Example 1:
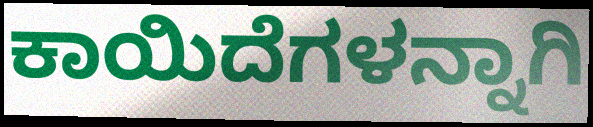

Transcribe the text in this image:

ಕಾಯಿದೆಗಳನ್ನಾಗಿ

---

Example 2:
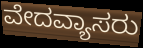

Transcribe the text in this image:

ವೇದವ್ಯಾಸರು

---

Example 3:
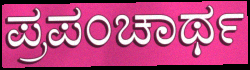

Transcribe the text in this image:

ಪ್ರಪಂಚಾರ್ಥ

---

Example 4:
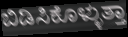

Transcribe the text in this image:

ಬಿಡಿಸಿಕೊಳ್ಳುತ್ತಾ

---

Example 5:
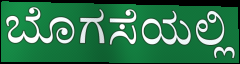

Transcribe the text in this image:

ಬೊಗಸೆಯಲ್ಲಿ